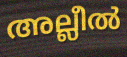
അല്ലീൽ